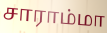
சாராம்மா